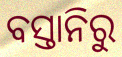
ବସ୍ତାନିରୁ